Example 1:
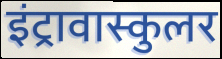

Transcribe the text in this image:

इंट्रावास्कुलर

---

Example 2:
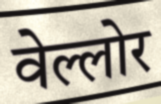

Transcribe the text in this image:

वेल्लोर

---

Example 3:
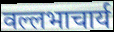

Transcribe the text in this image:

वल्‍लभाचार्य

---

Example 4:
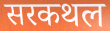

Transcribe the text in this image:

सरकथल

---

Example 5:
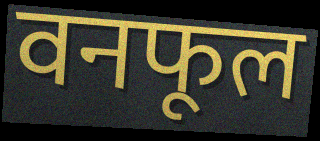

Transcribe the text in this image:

वनफूल